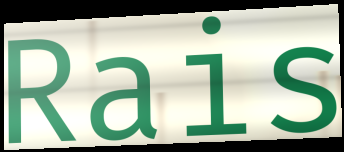
Rais